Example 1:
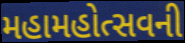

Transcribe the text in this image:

મહામહોત્સવની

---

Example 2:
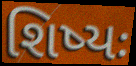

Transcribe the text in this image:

શિષ્યઃ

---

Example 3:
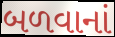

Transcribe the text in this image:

બળવાનાં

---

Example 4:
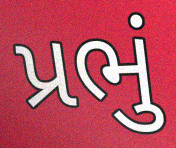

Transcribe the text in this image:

પ્રભું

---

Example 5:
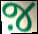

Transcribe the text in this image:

જ઼